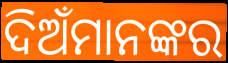
ଦିଅଁମାନଙ୍କର